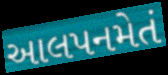
આલપનમેતં